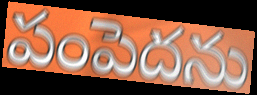
పంపెదను